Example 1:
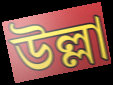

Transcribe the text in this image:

উল্লা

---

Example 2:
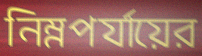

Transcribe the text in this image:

নিম্নপর্যায়ের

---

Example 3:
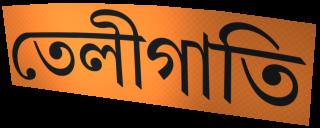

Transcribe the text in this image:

তেলীগাতি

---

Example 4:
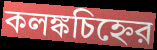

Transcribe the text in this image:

কলঙ্কচিহ্নের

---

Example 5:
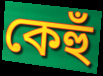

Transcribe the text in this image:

কেহুঁ